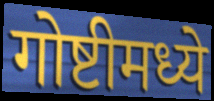
गोष्टीमध्ये